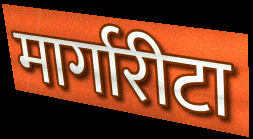
मार्गारीटा